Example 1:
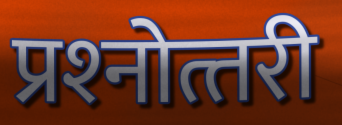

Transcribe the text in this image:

प्रश्‍नोत्‍तरी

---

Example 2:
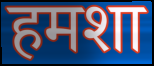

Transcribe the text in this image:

हमशा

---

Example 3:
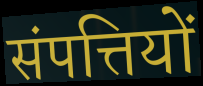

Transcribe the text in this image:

संपत्तियों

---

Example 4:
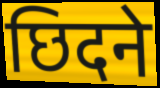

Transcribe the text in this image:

छिदने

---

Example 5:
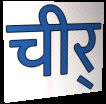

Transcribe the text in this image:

चीर्